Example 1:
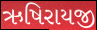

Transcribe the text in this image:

ઋષિરાયજી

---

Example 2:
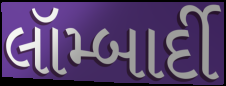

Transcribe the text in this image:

લૉમ્બાર્દી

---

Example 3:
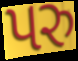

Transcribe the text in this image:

પરુ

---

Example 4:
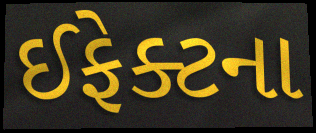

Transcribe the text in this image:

ઈફેક્ટના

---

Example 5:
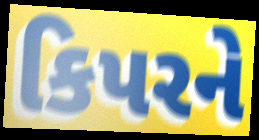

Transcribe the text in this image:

કિપરને